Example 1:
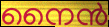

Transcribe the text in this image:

നൈൻ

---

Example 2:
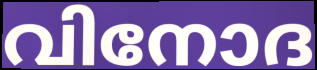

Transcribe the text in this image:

വിനോദ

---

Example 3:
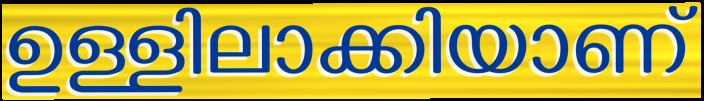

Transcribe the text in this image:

ഉള്ളിലാക്കിയാണ്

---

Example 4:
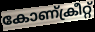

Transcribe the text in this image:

കോണ്ക്രീറ്റ്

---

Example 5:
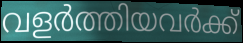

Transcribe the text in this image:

വളർത്തിയവർക്ക്